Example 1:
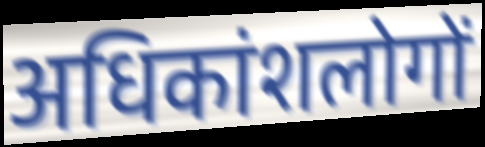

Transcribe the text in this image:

अधिकांशलोगों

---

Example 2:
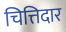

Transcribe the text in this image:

चित्तिदार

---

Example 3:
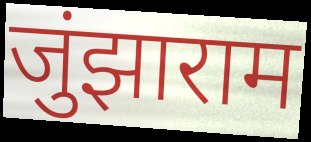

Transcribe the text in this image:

जुंझाराम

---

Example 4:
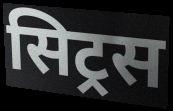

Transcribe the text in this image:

सिट्रस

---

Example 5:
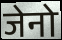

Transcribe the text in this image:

जेनो